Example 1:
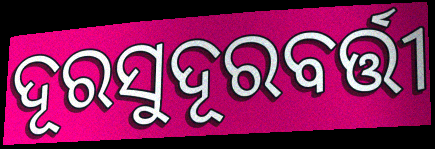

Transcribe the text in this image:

ଦୂରସୁଦୂରବର୍ତ୍ତୀ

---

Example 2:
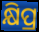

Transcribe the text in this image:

କ୍ଷିପ୍ର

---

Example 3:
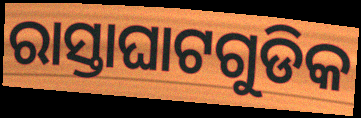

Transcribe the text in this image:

ରାସ୍ତାଘାଟଗୁଡିକ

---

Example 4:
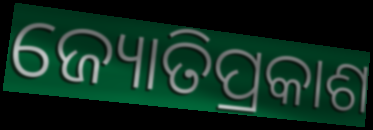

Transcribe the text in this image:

ଜ୍ୟୋତିପ୍ରକାଶ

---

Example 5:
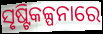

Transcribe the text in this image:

ସୃଷ୍ଟିକଳ୍ପନାରେ